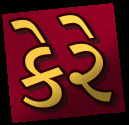
કેરે